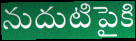
నుదుటిపైకి